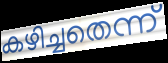
കഴിച്ചതെന്ന്